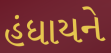
હંધાયને